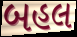
બહલ